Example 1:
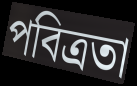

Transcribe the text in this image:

পবিত্রতা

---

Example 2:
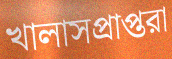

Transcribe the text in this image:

খালাসপ্রাপ্তরা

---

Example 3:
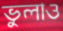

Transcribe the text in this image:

ভুলাও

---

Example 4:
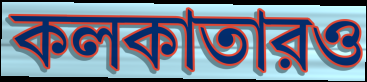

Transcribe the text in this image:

কলকাতারও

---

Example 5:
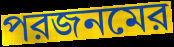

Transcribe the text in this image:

পরজনমের